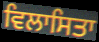
ਵਿਲਾਸਿਤਾ